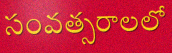
సంవత్సరాలలో